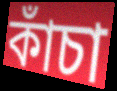
কাঁচা